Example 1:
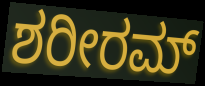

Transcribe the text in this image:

ಶರೀರಮ್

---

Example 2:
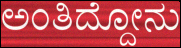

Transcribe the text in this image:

ಅಂತಿದ್ದೋನು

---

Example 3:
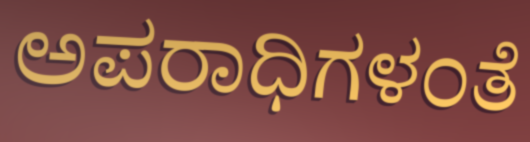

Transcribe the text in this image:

ಅಪರಾಧಿಗಳಂತೆ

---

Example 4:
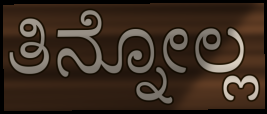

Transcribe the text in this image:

ತಿನ್ನೋಲ್ಲ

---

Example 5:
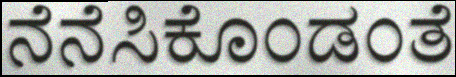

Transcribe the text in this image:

ನೆನೆಸಿಕೊಂಡಂತೆ